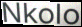
Nkolo